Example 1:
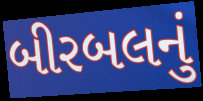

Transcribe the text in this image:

બીરબલનું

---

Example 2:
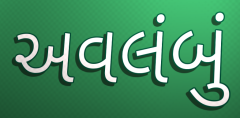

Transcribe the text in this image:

અવલંબું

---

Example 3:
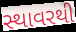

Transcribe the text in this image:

સ્થાવરથી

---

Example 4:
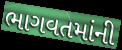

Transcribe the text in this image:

ભાગવતમાંની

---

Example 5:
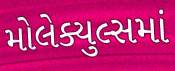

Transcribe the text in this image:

મોલેક્યુલ્સમાં